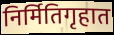
निर्मितिगृहात